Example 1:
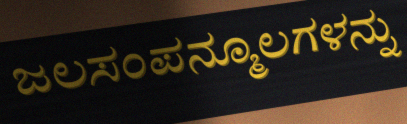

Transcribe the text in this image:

ಜಲಸಂಪನ್ಮೂಲಗಳನ್ನು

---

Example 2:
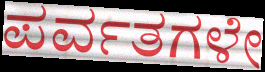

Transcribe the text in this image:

ಪರ್ವತಗಳೇ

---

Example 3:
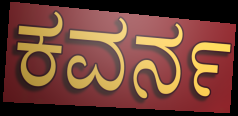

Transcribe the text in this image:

ಕವರ್ನ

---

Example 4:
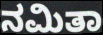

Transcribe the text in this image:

ನಮಿತಾ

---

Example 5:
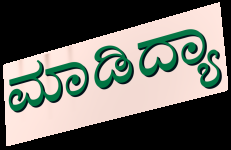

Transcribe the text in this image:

ಮಾಡಿದ್ಯಾ